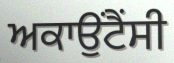
ਅਕਾਉਂਟੈਂਸੀ